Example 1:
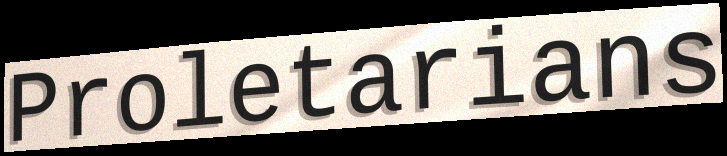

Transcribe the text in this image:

Proletarians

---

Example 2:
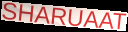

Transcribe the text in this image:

SHARUAAT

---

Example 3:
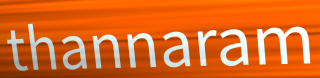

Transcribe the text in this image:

thannaram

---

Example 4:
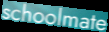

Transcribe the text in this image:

schoolmate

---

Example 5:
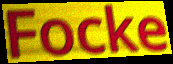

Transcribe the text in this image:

Focke